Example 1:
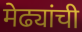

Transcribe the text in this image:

मेढ्यांची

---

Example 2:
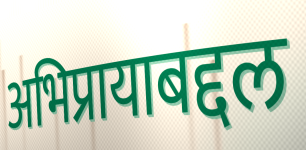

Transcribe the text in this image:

अभिप्रायाबद्दल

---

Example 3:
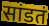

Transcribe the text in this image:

सांडतं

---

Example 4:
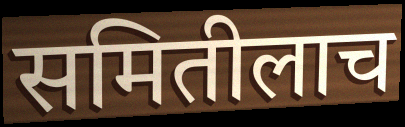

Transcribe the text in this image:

समितीलाच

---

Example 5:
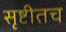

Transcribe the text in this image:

सृष्टीतच